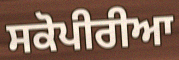
ਸਕੋਪੀਰੀਆ